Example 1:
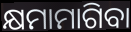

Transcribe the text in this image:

କ୍ଷମାମାଗିବା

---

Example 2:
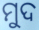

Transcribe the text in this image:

ମୁଦ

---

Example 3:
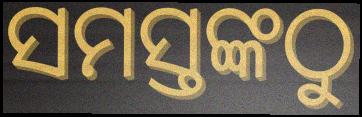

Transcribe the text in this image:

ସମସ୍ତଙ୍କଠୁ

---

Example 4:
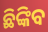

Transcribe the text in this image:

ଛିଙ୍କିବ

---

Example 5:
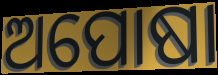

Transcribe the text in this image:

ଅପୋଷା